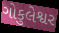
ગોકુલેશ્વર